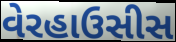
વેરહાઉસીસ